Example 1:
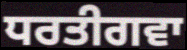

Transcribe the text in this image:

ਧਰਤੀਗਵਾ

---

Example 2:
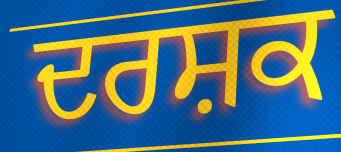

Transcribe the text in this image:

ਦਰਸ਼ਕ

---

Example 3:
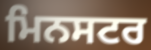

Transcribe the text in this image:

ਮਿਨਸਟਰ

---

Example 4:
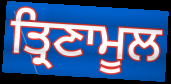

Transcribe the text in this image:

ਤ੍ਰਿਣਾਮੂਲ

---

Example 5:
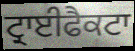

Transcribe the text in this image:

ਟ੍ਰਾਈਫੈਕਟਾ